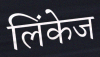
लिंकेज